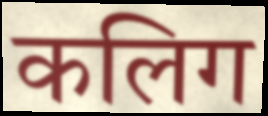
कलिग